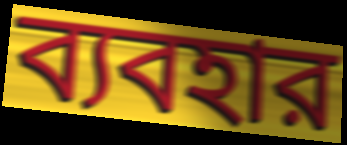
ব্যবহার